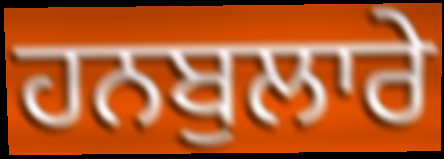
ਹਨਬੁਲਾਰੇ